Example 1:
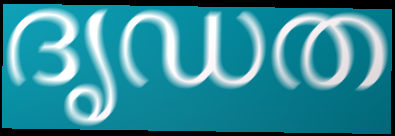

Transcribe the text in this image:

ദൃഡത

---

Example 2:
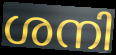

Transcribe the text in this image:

ശനി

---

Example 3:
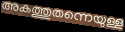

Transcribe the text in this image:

അകത്തുതന്നെയുള്ള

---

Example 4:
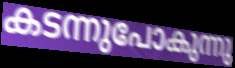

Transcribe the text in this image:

കടന്നുപോകുന്നു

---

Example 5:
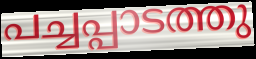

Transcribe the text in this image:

പച്ചപ്പാടത്തു